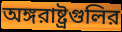
অঙ্গরাষ্ট্রগুলির